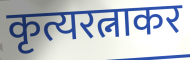
कृत्यरत्नाकर